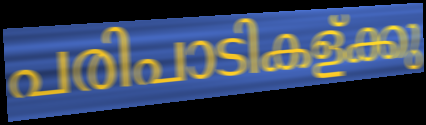
പരിപാടികള്ക്കു